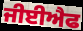
ਜੀਈਐਫ